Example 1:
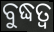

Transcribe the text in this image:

ବୁଦ୍ଧତ୍ୱ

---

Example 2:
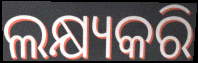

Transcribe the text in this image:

ଲକ୍ଷ୍ୟକରି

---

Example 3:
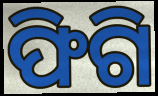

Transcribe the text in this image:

ଫିଗି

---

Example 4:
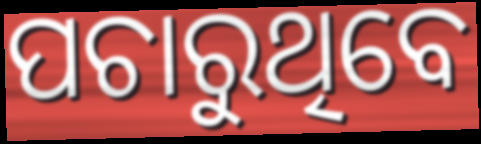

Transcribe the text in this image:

ପଚାରୁଥିବେ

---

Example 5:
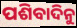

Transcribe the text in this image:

ପଶିବାଦିନୁ